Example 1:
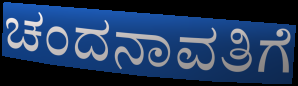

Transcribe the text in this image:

ಚಂದನಾವತಿಗೆ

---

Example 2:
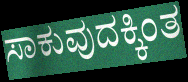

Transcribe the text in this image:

ಸಾಕುವುದಕ್ಕಿಂತ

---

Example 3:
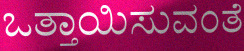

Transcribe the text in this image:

ಒತ್ತಾಯಿಸುವಂತೆ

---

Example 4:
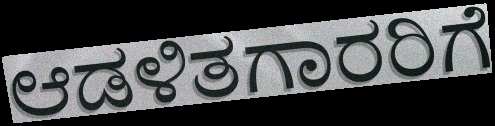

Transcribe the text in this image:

ಆಡಳಿತಗಾರರಿಗೆ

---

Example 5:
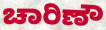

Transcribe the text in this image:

ಚಾರಿಣೌ